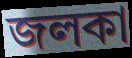
জলকা